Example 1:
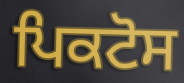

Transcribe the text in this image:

ਪਿਕਟੋਸ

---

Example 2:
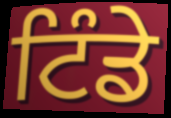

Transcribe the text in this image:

ਟਿੰਡੇ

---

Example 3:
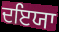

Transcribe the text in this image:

ਦਇਯਾ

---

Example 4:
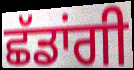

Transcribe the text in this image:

ਛੱਡਾਂਗੀ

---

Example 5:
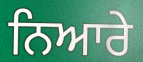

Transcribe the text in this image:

ਨਿਆਰੇ